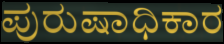
ಪುರುಷಾಧಿಕಾರ